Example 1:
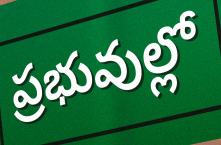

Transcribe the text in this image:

ప్రభువుల్లో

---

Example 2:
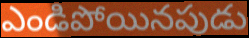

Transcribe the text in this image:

ఎండిపోయినపుడు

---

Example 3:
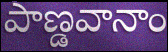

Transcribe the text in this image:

పాణ్డవానాం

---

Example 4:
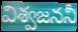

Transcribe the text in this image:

విశ్వజననీ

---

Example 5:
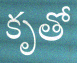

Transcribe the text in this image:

కృతో